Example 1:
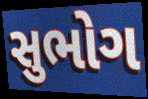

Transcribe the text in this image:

સુભોગ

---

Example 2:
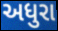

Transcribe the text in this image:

અધુરા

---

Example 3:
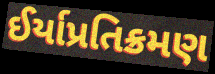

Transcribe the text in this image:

ઈર્યાપ્રતિક્રમણ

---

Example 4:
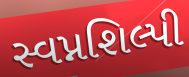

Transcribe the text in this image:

સ્વપ્નશિલ્પી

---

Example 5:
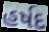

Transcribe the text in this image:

હર્ષદ